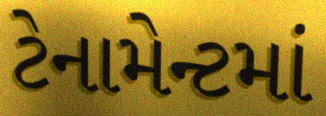
ટેનામેન્ટમાં